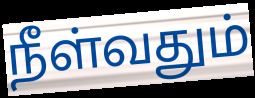
நீள்வதும்